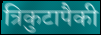
त्रिकुटापैकी